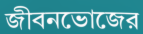
জীবনভোজের